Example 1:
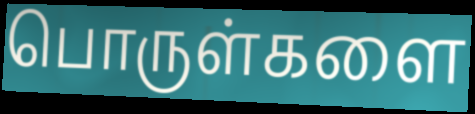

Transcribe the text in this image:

பொருள்களை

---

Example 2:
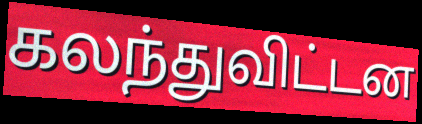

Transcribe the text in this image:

கலந்துவிட்டன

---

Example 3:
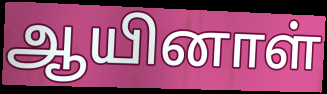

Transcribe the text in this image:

ஆயினாள்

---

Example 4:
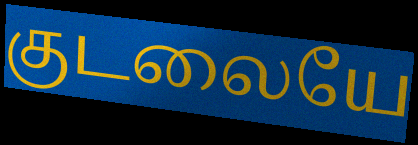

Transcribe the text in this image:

குடலையே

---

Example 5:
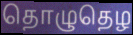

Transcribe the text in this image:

தொழுதெழ